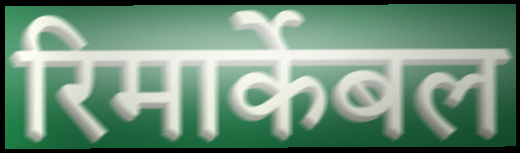
रिमार्केबल